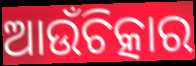
ଆଉଁଚିତ୍କାର